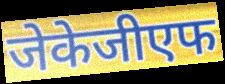
जेकेजीएफ